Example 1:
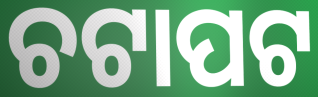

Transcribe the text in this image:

ଚଟାପଟ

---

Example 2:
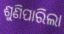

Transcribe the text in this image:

ଶୁଣିପାରିଲା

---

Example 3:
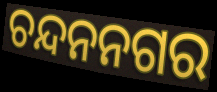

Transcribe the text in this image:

ଚନ୍ଦନନଗର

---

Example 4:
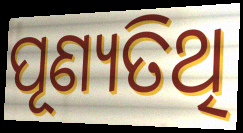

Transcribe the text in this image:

ପୂଣ୍ୟତିଥି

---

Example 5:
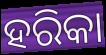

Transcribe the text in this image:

ହରିକା